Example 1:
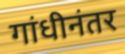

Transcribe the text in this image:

गांधीनंतर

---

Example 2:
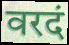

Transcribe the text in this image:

वरदं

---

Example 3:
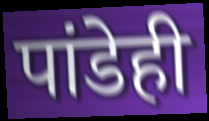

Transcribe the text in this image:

पांडेही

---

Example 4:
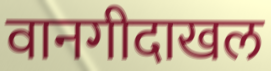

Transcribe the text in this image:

वानगीदाखल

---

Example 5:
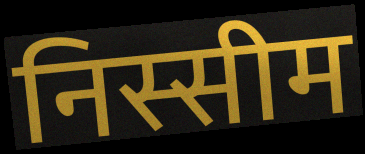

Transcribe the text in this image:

निस्सीम